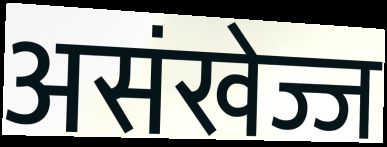
असंखेज्ज